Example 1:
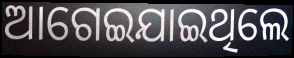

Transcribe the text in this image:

ଆଗେଇଯାଇଥିଲେ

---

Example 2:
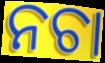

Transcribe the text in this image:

ନଚା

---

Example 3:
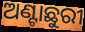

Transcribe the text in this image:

ଅଣ୍ଟାଛୁରୀ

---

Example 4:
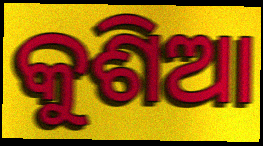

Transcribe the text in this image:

କୁଶିଆ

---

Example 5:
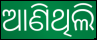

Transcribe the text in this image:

ଆଣିଥିଲି